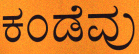
ಕಂಡೆವು